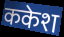
ककेश